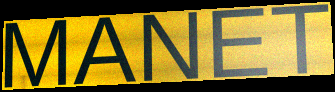
MANET